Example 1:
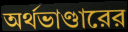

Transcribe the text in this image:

অর্থভাণ্ডারের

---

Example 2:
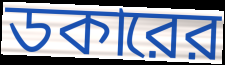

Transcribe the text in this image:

ডকারের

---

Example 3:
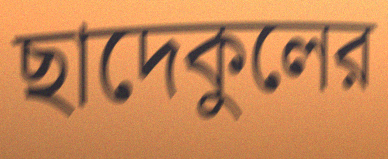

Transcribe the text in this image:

ছাদেকুলের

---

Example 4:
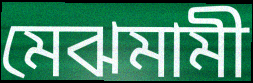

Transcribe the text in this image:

মেঝমামী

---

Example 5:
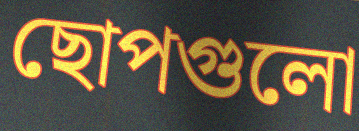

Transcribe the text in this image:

ছোপগুলো